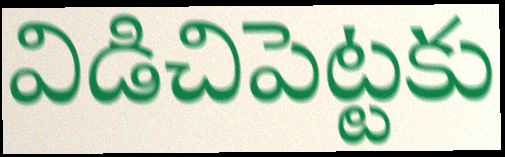
విడిచిపెట్టకు